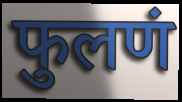
फुलणं